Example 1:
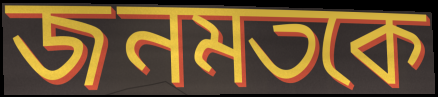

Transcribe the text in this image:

জনমতকে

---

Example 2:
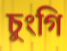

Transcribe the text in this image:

চুংগি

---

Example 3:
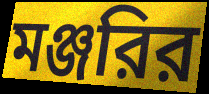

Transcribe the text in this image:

মঞ্জরির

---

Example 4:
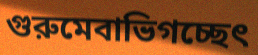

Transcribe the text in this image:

গুরুমেবাভিগচ্ছেৎ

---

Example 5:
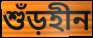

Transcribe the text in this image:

শুঁড়হীন